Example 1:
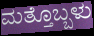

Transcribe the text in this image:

ಮತ್ತೊಬ್ಬಳು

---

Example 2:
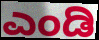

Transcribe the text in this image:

ಎಂಡಿ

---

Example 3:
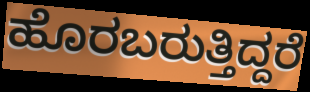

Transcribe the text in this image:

ಹೊರಬರುತ್ತಿದ್ದರೆ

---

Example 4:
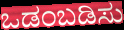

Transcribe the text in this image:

ಒಡಂಬಡಿಸು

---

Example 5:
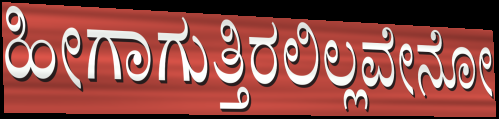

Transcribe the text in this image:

ಹೀಗಾಗುತ್ತಿರಲಿಲ್ಲವೇನೋ